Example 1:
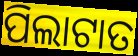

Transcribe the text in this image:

ପିଲାଟାତ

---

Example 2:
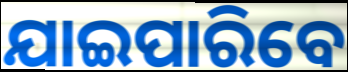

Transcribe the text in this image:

ଯାଇପାରିବେ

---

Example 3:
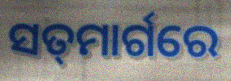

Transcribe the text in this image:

ସତ୍‌ମାର୍ଗରେ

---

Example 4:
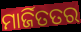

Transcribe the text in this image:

ମାର୍ଜିତତର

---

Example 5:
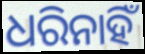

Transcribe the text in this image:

ଧରିନାହିଁ